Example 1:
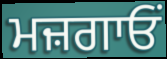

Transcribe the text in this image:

ਮਜ਼ਗਾਓਂ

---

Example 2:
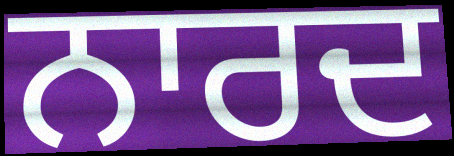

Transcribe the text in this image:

ਨਾਰਦ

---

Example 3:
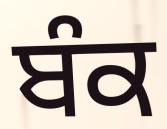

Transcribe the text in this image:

ਬੰਕ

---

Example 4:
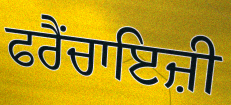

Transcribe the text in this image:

ਫਰੈਂਚਾਇਜ਼ੀ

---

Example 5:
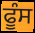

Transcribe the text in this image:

ਫੂੰਸ